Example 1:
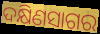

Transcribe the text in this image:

ଦକ୍ଷିଣସାଗର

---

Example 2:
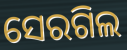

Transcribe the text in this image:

ସେରଗିଲ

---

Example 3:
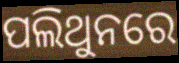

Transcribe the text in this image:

ପଲିଥୁନରେ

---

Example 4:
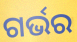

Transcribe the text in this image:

ଗର୍ଭର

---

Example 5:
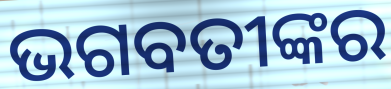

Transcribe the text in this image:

ଭଗବତୀଙ୍କର